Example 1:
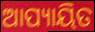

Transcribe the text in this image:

ଆପ୍ଯାୟିତ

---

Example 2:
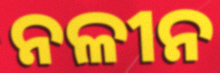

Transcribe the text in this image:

ନଳୀନ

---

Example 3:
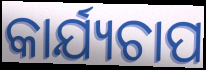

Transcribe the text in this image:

କାର୍ଯ୍ୟଚାପ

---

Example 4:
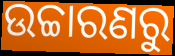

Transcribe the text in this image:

ଉଚ୍ଚାରଣରୁ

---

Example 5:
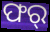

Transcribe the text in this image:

ଫର୍